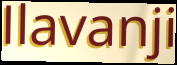
Ilavanji